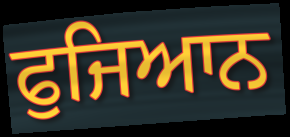
ਫੁਜਿਆਨ